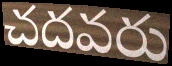
చదవరు